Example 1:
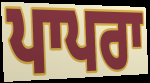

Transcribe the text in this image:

ਪਾਪਰਾ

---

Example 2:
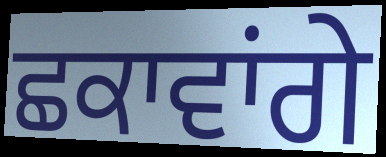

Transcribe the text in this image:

ਛਕਾਵਾਂਗੇ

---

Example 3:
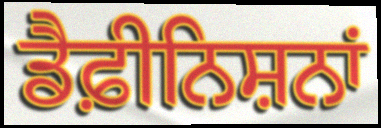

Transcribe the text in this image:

ਡੈਫ਼ੀਨਿਸ਼ਨਾਂ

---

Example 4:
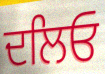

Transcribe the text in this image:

ਦਲਿਓ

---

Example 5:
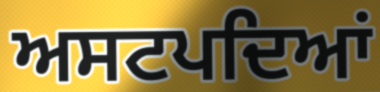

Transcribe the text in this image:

ਅਸਟਪਦਿਆਂ